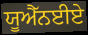
ਯੂਐੱਨਈਏ